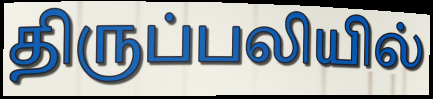
திருப்பலியில்